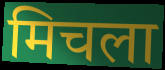
मिचला